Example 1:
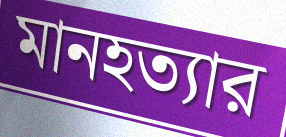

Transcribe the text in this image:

মানহত্যার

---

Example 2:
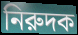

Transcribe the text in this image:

নিরুদক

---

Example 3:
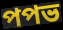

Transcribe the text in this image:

পপভ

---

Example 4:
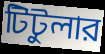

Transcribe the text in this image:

টিটুলার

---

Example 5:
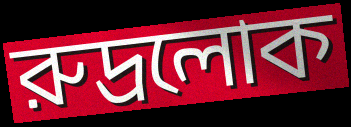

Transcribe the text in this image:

রুদ্রলোক